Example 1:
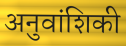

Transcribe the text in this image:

अनुवांशिकी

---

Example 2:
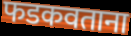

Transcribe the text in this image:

फडकवताना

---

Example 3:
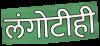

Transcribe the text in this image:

लंगोटीही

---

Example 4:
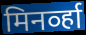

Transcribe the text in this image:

मिनर्व्हा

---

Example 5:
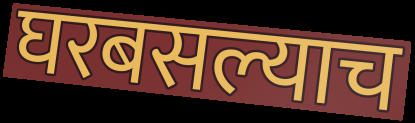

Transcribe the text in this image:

घरबसल्याच